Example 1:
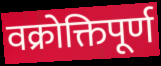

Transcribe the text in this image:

वक्रोक्तिपूर्ण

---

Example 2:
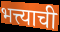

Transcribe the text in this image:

भत्त्याची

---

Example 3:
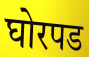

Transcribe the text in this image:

घोरपड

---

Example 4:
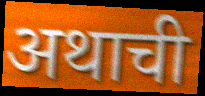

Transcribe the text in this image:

अथाची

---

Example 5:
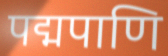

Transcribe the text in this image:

पद्मपाणि